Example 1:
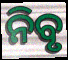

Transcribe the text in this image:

ନିବୃ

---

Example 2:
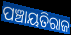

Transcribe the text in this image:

ପଞ୍ଚାୟତିରାଜ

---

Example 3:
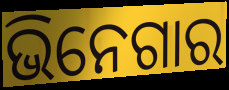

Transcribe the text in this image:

ଭିନେଗାର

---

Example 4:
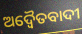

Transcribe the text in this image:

ଅଦ୍ୱୈତବାଦୀ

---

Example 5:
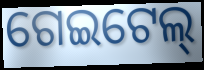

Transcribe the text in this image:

ଗେଇଟେଲ୍